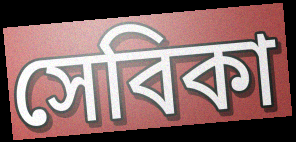
সেবিকা